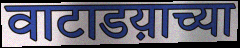
वाटाडय़ाच्या